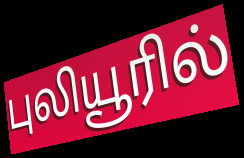
புலியூரில்